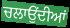
ਚਲਾਉਂਦੀਆਂ